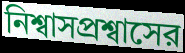
নিশ্বাসপ্রশ্বাসের